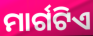
ମାର୍ଗଟିଏ